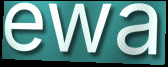
ewa